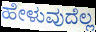
ಹೇಳುವುದೆಲ್ಲ